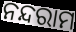
ନନ୍ଦରାମ